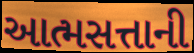
આત્મસત્તાની